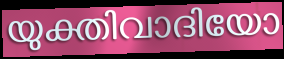
യുക്തിവാദിയോ